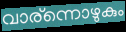
വാര്ന്നൊഴുകും